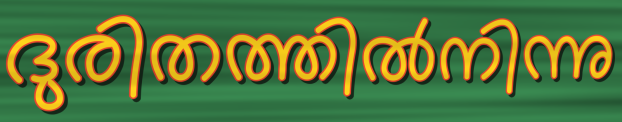
ദുരിതത്തിൽനിന്നു